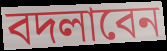
বদলাবেন